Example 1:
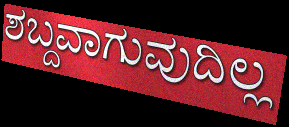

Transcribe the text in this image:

ಶಬ್ದವಾಗುವುದಿಲ್ಲ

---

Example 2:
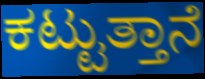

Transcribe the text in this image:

ಕಟ್ಟುತ್ತಾನೆ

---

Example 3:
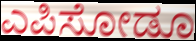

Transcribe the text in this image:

ಎಪಿಸೋಡೂ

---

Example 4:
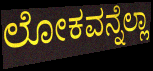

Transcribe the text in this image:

ಲೋಕವನ್ನೆಲ್ಲಾ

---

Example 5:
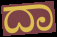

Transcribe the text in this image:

ದಾ